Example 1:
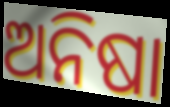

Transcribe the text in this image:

ଅନିଷା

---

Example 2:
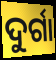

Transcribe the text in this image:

ଦୁର୍ଗା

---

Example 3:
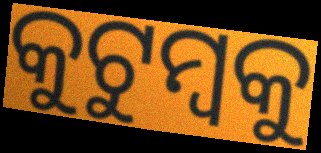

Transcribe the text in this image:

କୁଟୁମ୍ବକୁ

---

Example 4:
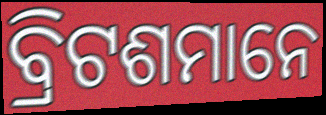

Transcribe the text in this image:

ବ୍ରିଟଶମାନେ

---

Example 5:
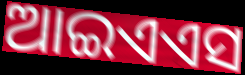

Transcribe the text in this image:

ଆଇଏଏସ